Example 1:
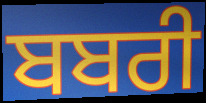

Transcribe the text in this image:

ਬਬਰੀ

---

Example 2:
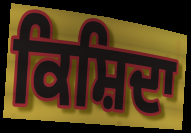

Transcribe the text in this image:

ਕਿਸ਼ਿਦਾ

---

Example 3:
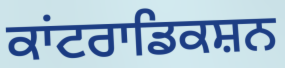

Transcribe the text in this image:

ਕਾਂਟਰਾਡਿਕਸ਼ਨ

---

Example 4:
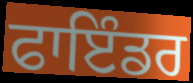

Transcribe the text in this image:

ਫਾਇੰਡਰ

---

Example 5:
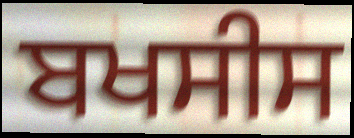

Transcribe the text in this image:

ਬਖਸੀਸ